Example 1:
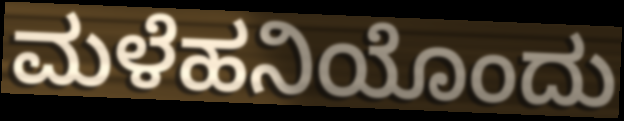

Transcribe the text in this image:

ಮಳೆಹನಿಯೊಂದು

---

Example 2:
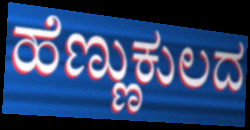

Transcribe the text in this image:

ಹೆಣ್ಣುಕುಲದ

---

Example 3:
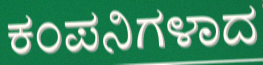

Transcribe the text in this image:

ಕಂಪನಿಗಳಾದ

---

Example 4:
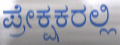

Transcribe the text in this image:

ಪ್ರೇಕ್ಷಕರಲ್ಲಿ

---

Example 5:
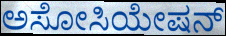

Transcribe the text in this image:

ಅಸೋಸಿಯೇಷನ್